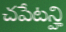
చపేటన్హి